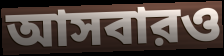
আসবারও